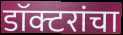
डॉक्टरांचा